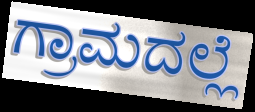
ಗ್ರಾಮದಲ್ಲೆ